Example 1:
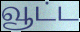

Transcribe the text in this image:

வூட்ட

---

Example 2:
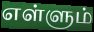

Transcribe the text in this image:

எள்ளும்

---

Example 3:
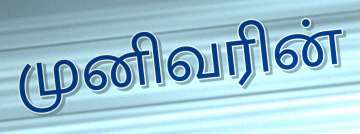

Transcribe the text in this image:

முனிவரின்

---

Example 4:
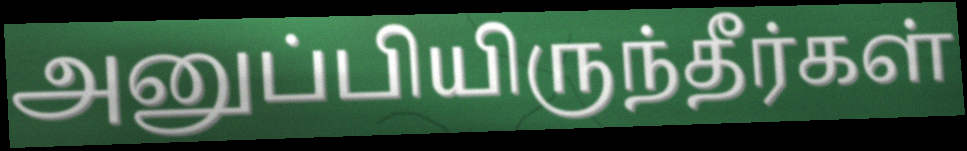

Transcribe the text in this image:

அனுப்பியிருந்தீர்கள்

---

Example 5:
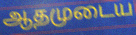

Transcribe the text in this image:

ஆதமுடைய